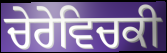
ਚੇਰੇਵਿਚਕੀ